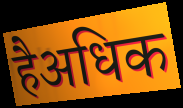
हैअधिक